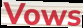
Vows